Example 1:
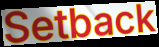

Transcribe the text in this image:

Setback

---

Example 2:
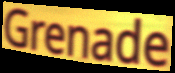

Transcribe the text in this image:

Grenade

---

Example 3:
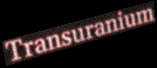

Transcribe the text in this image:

Transuranium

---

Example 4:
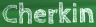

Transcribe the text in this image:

Cherkin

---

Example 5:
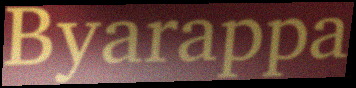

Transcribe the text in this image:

Byarappa